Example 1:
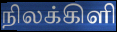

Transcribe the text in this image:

நிலக்கிளி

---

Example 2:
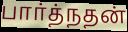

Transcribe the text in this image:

பார்த்நதன்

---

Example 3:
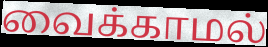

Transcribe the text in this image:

வைக்காமல்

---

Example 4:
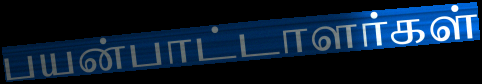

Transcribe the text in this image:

பயன்பாட்டாளர்கள்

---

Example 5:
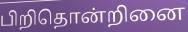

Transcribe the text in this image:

பிறிதொன்றினை